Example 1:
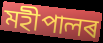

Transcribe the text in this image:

মহীপালৰ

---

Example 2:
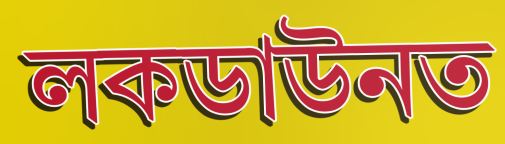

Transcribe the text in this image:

লকডাউনত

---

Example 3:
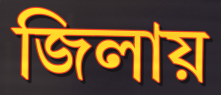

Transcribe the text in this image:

জিলায়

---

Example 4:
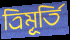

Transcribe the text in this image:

ত্ৰিমূৰ্তি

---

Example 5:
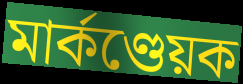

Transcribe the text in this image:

মাৰ্কণ্ডেয়ক